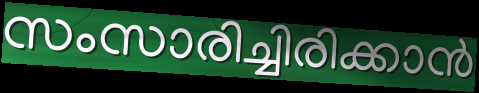
സംസാരിച്ചിരിക്കാൻ